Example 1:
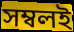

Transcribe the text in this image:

সম্বলই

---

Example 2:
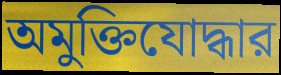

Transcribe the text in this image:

অমুক্তিযোদ্ধার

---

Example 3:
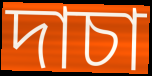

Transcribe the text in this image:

দাচা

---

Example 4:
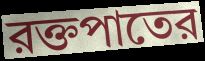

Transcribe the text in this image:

রক্তপাতের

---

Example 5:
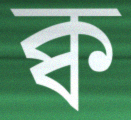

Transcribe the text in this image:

ক্ব